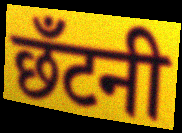
छँटनी